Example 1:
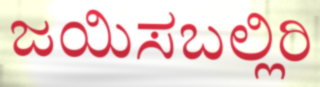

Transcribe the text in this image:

ಜಯಿಸಬಲ್ಲಿರಿ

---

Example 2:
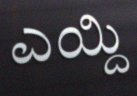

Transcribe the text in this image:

ಎಯ್ದಿ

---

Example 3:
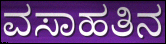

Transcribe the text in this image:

ವಸಾಹತಿನ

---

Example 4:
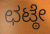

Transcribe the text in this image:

ಛಟ್ಠೇ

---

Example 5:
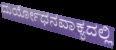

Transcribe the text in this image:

ದುರ್ಯೋಧನವಾಕ್ಯದಲ್ಲಿ